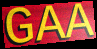
GAA